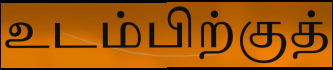
உடம்பிற்குத்